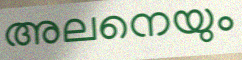
അലനെയും